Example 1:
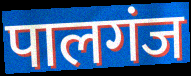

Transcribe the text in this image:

पालगंज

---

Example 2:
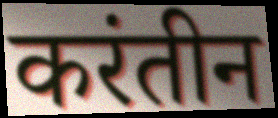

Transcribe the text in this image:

करंतीन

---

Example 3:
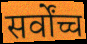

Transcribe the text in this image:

सर्वोंच्च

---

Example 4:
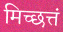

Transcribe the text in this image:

मिच्छत्तं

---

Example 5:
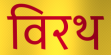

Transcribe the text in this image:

विरथ